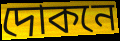
দোকনে